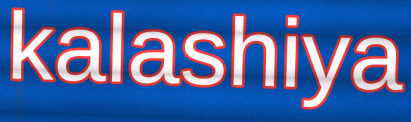
kalashiya